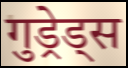
गुड्रेड्स